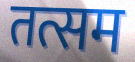
तत्सम